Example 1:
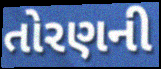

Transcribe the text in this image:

તોરણની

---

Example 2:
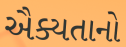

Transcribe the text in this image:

ઐક્યતાનો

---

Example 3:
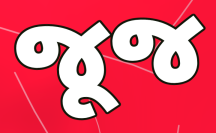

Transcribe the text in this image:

જૂજ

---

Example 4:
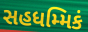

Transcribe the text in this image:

સહધમ્મિકં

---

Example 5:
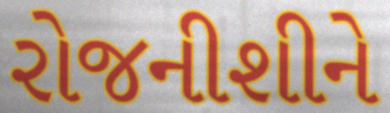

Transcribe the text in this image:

રોજનીશીને